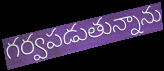
గర్వపడుతున్నాను